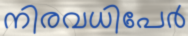
നിരവധിപേർ